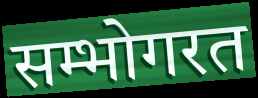
सम्भोगरत